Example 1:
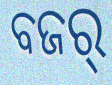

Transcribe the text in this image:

ବଜର୍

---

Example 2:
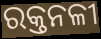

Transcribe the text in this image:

ରକ୍ତନଳୀ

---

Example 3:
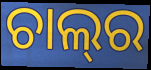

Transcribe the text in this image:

ଚାଲ୍‌ର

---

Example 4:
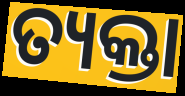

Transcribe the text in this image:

ତ୍ୟକ୍ତା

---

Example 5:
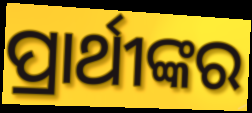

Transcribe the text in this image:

ପ୍ରାର୍ଥୀଙ୍କର